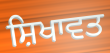
ਸ਼ਿਖਾਵਤ